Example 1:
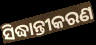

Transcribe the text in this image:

ସିଦ୍ଧାନ୍ତୀକରଣ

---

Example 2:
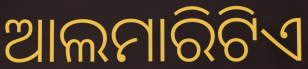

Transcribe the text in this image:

ଆଲମାରିଟିଏ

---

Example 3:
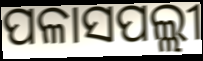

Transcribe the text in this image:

ପଳାସପଲ୍ଲୀ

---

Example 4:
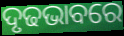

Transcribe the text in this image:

ଦୃଢଭାବରେ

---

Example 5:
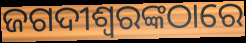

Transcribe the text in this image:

ଜଗଦୀଶ୍ୱରଙ୍କଠାରେ